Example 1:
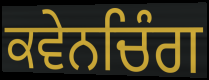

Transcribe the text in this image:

ਕਵੇਨਚਿੰਗ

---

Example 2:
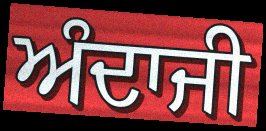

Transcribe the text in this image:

ਅੰਦਾਜੀ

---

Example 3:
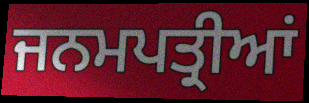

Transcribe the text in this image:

ਜਨਮਪਤ੍ਰੀਆਂ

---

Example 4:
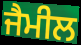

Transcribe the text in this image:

ਜੈਮੀਲ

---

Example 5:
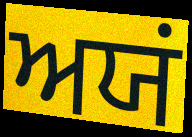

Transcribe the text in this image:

ਅਯਂ